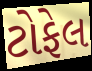
ટોફેલ